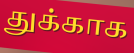
துக்காக